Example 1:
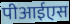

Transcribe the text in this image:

पीआईएस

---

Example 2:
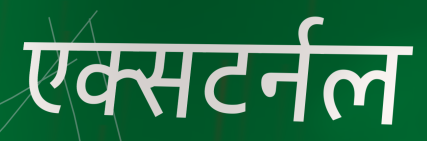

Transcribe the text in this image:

एक्सटर्नल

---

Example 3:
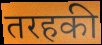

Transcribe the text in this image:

तरहकी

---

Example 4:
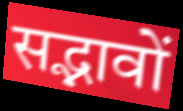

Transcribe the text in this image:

सद्भावों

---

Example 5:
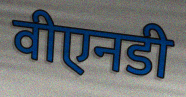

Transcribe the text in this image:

वीएनडी